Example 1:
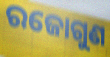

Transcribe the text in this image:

ରଜୋଗୁଣ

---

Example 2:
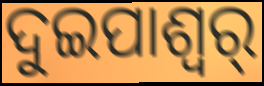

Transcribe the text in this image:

ଦୁଇପାଶ୍ୱର୍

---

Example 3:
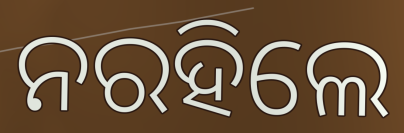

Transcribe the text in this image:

ନରହିଲେ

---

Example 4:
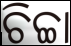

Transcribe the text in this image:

ଚିଚ୍ଚା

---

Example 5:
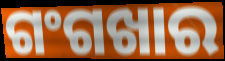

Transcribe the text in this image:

ଗଂଗଖାର